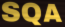
SQA